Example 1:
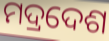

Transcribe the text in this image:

ମଦ୍ରଦେଶ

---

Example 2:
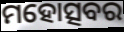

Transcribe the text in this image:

ମହୋତ୍ସବର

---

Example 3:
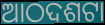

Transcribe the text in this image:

ଆଠଦଶଟା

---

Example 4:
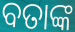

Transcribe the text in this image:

ବତାଙ୍କ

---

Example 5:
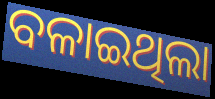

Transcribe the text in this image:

ବଳାଇଥିଲା